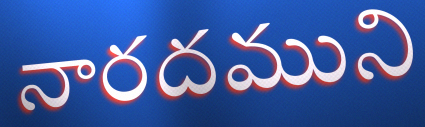
నారదముని